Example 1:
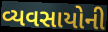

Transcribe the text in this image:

વ્યવસાયોની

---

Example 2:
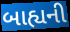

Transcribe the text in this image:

બાહ્યની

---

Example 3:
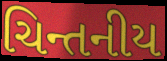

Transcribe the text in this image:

ચિન્તનીય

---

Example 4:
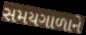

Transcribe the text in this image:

સમયગાળાને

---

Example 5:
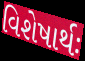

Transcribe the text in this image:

વિશેષાર્થઃ